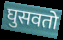
घुसवतो